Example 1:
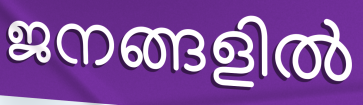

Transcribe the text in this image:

ജനങ്ങളിൽ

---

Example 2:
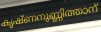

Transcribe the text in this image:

കൃഷ്ണനുണ്ണിത്താന്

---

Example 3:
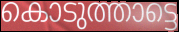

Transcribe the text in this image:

കൊടുത്താട്ടെ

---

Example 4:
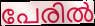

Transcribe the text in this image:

പേരിൽ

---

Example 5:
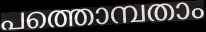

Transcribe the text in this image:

പത്തൊമ്പതാം